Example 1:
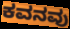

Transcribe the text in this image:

ಕವನವು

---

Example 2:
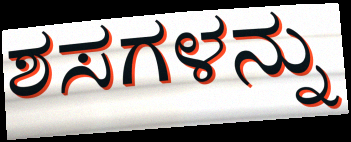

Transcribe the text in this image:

ಶಸಗಳನ್ನು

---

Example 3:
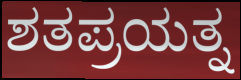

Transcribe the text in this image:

ಶತಪ್ರಯತ್ನ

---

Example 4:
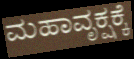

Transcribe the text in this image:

ಮಹಾವೃಕ್ಷಕ್ಕೆ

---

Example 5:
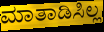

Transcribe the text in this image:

ಮಾತಾಡಿಸಿಲ್ಲ